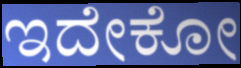
ಇದೇಕೋ